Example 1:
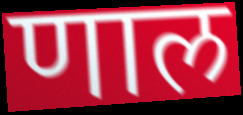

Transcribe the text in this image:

णाल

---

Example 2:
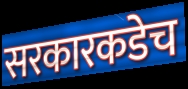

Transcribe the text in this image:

सरकारकडेच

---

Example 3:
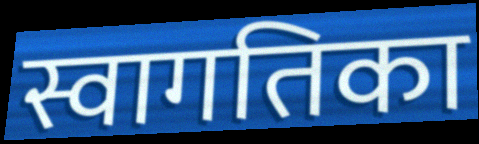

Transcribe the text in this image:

स्वागतिका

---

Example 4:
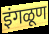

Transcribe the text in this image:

इंगळूण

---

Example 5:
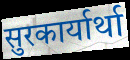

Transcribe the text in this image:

सुरकार्यार्था